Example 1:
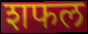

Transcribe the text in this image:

शफल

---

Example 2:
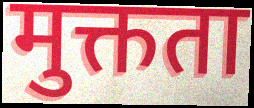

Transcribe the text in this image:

मुक्तता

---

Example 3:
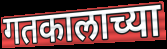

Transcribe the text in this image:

गतकालाच्या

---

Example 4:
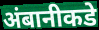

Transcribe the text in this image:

अंबानीकडे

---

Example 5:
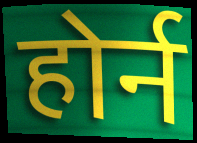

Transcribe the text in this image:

होर्न